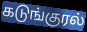
கடுங்குரல்